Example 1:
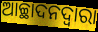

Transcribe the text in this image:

ଆଚ୍ଛାଦନଦ୍ୱାରା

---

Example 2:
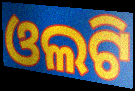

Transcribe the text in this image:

ଓଲଟି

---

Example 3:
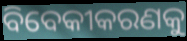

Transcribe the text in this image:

ବିବେକୀକରଣକୁ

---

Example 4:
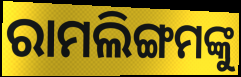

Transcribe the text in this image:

ରାମଲିଙ୍ଗମଙ୍କୁ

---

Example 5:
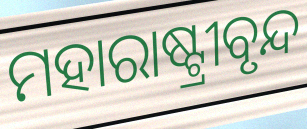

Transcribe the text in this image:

ମହାରାଷ୍ଟ୍ରୀବୃନ୍ଦ